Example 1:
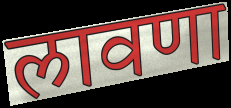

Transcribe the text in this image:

लावणा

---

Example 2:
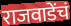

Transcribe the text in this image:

राजवाडेंचं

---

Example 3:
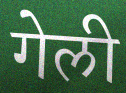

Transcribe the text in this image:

गेली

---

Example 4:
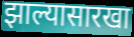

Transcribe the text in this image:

झाल्यासारखा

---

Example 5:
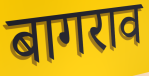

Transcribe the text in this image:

बागराव